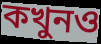
কখুনও